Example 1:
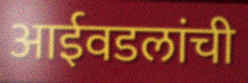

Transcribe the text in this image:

आईवडलांची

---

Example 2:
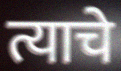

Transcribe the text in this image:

त्याचे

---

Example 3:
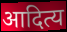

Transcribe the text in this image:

आदित्य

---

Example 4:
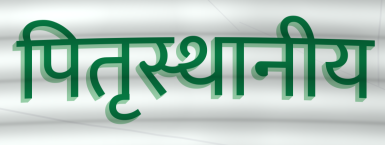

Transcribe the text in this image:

पितृस्थानीय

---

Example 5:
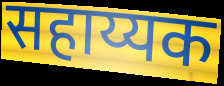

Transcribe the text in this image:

सहाय्यक